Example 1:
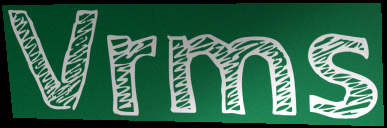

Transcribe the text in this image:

Vrms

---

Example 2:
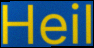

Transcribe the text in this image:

Heil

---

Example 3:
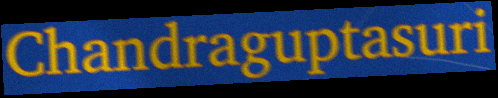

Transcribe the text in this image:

Chandraguptasuri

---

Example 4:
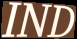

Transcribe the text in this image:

IND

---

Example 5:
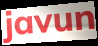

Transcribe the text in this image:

javun